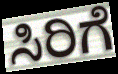
ಸಿರಿಗೆ